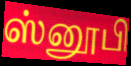
ஸ்னூபி